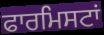
ਫਾਰਮਿਸਟਾਂ